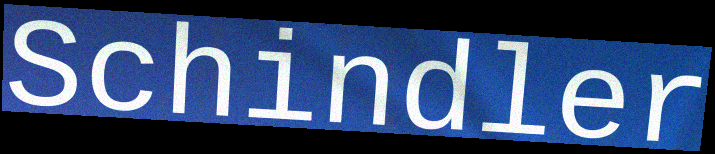
Schindler